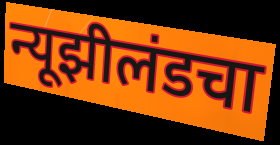
न्यूझीलंडचा